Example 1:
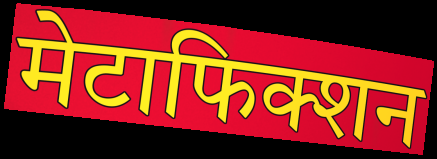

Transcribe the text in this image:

मेटाफिक्शन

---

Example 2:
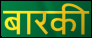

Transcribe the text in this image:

बारकी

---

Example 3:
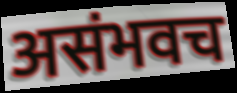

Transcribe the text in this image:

असंभवच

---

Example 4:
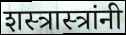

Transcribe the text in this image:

शस्त्रास्त्रांनी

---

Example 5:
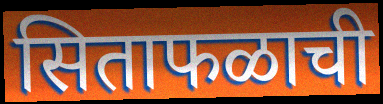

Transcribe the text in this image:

सिताफळाची